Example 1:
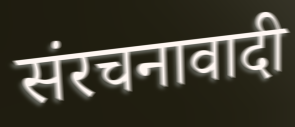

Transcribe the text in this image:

संरचनावादी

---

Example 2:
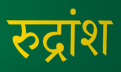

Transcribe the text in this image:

रुद्रांश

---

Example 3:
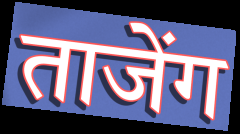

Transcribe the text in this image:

ताजेंग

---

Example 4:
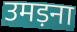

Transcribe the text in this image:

उमड़ना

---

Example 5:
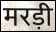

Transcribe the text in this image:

मरड़ी